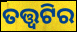
ତତ୍ତ୍ଵଟିର